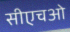
सीएचओ